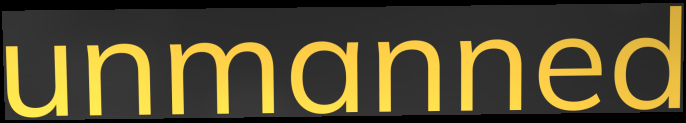
unmanned